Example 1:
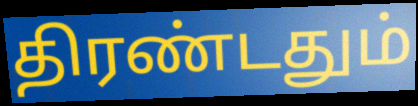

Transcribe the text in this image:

திரண்டதும்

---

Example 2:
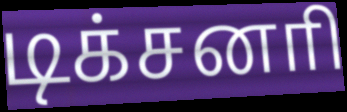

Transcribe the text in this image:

டிக்சனரி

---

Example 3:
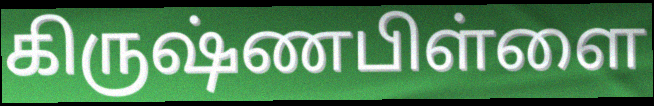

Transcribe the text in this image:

கிருஷ்ணபிள்ளை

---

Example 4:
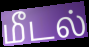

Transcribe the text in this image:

மீடல்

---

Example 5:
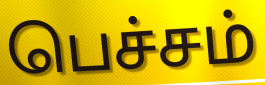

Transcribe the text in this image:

பெச்சம்